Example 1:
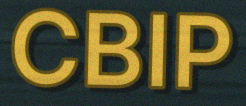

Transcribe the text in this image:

CBIP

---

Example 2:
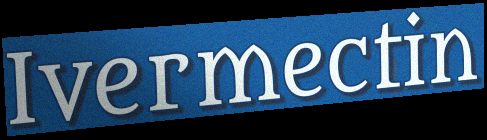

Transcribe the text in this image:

Ivermectin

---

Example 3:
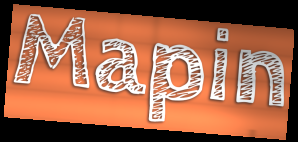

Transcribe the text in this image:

Mapin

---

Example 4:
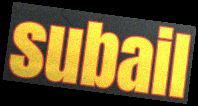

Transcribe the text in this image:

subail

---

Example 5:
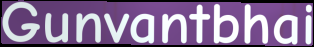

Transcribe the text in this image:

Gunvantbhai